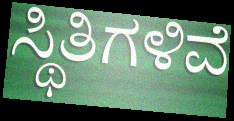
ಸ್ಥಿತಿಗಳಿವೆ